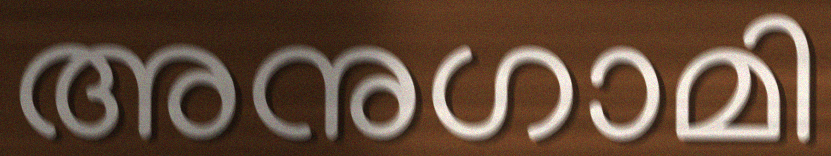
അനുഗാമി